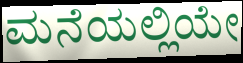
ಮನೆಯಲ್ಲಿಯೇ